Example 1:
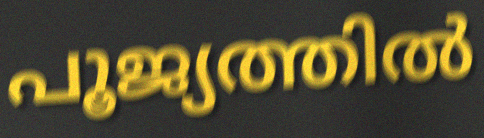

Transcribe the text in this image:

പൂജ്യത്തിൽ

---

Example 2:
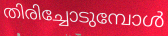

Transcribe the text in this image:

തിരിച്ചോടുമ്പോൾ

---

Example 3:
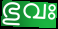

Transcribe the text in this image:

ഭുവഃ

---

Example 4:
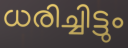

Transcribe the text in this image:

ധരിച്ചിട്ടും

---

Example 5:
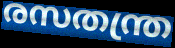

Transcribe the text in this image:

രസതന്ത്ര